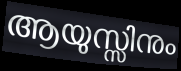
ആയുസ്സിനും